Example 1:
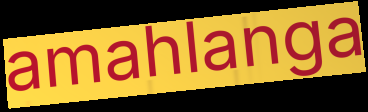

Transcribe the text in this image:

amahlanga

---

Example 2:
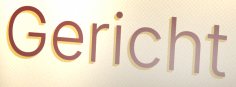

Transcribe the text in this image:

Gericht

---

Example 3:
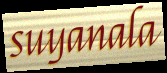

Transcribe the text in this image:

suyanala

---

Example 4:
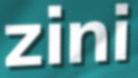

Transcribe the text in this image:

zini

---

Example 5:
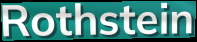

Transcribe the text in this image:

Rothstein